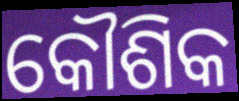
କୌଶିକ